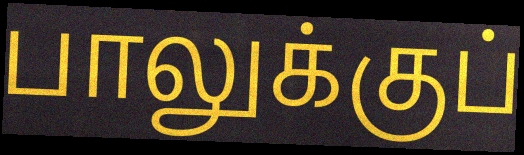
பாலுக்குப்